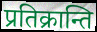
प्रतिक्रान्ति